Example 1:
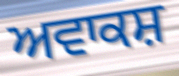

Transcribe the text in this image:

ਅਵਾਕਸ਼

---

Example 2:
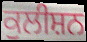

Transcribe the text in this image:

ਕੁਲੀਸ਼ਨ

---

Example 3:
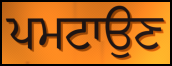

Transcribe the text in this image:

ਪਮਟਾਉਣ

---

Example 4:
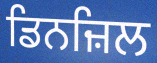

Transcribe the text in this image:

ਡਿਨਜ਼ਿਲ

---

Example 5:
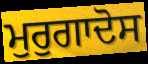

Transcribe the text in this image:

ਮੁਰੁਗਾਦੋਸ